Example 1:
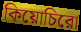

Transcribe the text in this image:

কিয়োচিরো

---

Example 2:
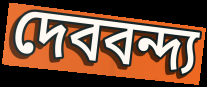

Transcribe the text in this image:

দেববন্দ্য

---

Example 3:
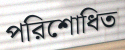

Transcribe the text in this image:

পরিশোধিত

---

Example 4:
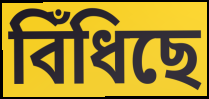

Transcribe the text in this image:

বিঁধিছে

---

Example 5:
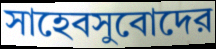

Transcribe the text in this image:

সাহেবসুবোদের